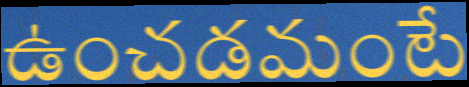
ఉంచడమంటే